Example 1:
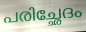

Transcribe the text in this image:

പരിച്ഛേദം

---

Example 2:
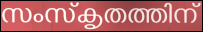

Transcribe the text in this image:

സംസ്‌കൃതത്തിന്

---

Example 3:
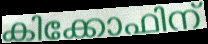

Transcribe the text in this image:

കിക്കോഫിന്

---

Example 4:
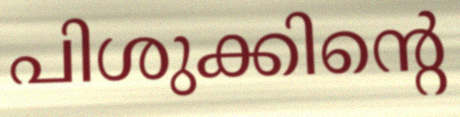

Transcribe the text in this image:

പിശുക്കിന്റെ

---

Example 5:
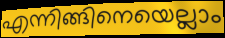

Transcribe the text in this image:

എന്നിങ്ങിനെയെല്ലാം